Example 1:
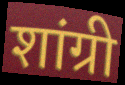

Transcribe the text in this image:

शांग्री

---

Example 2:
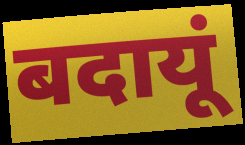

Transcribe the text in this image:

बदायूं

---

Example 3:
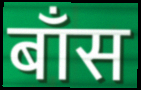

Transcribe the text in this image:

बाँस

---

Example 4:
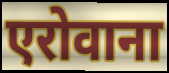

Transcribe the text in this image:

एरोवाना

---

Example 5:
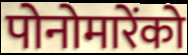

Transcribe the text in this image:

पोनोमारेंको